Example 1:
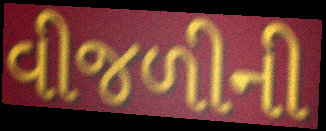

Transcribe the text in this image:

વીજળીની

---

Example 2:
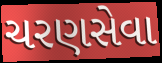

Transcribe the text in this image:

ચરણસેવા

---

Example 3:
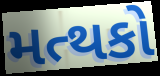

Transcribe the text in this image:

મત્થકો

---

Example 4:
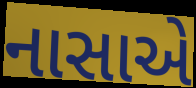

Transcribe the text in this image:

નાસાએ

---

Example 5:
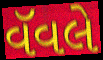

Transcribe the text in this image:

વૅવલે